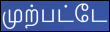
முற்பட்டே